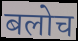
बलोच